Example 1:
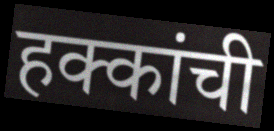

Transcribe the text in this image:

हक्कांची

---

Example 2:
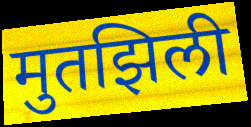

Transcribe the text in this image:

मुतझिली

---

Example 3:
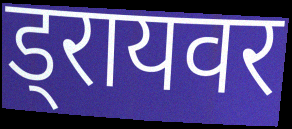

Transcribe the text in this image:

ड्रायवर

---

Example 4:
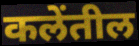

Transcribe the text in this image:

कलेंतील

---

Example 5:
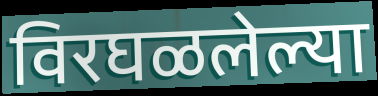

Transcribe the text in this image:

विरघळलेल्या